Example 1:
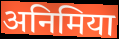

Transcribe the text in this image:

अनिमिया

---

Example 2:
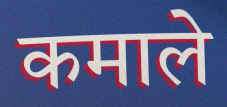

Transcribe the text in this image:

कमाले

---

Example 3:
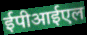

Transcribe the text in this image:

ईपीआईएल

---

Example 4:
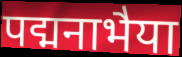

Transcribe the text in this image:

पद्मनाभैया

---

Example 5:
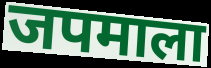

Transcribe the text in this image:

जपमाला